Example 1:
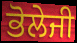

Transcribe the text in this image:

ਭੋਲੇਜੀ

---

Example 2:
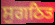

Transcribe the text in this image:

ਸੁਗਠਿਤ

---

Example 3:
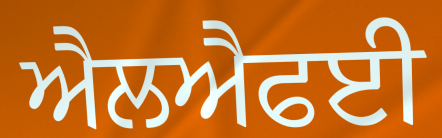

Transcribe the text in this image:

ਐਲਐਫਈ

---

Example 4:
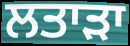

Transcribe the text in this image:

ਲਤਾੜਾ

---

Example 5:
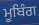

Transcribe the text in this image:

ਮੂਬਿੰਗ